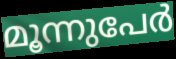
മൂന്നുപേർ